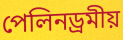
পেলিনড্ৰমীয়